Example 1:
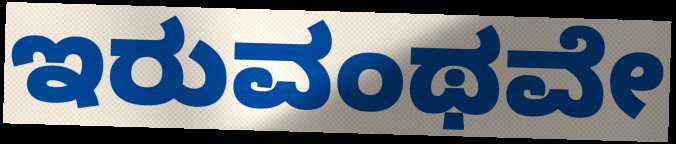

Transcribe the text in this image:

ಇರುವಂಥವೇ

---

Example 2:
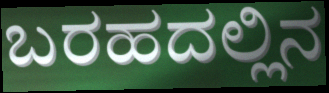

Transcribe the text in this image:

ಬರಹದಲ್ಲಿನ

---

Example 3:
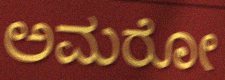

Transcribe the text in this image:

ಅಮರೋ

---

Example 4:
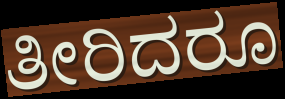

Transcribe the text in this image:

ತೀರಿದರೂ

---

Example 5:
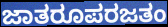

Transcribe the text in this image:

ಜಾತರೂಪರಜತಂ